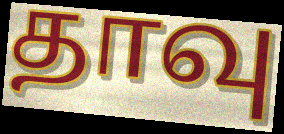
தாவு